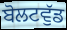
ਬੋਲਟਵੁੱਡ